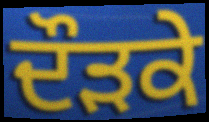
ਦੌੜਕੇ